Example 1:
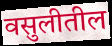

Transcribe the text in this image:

वसुलीतील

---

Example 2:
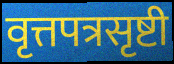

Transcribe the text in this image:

वृत्तपत्रसृष्टी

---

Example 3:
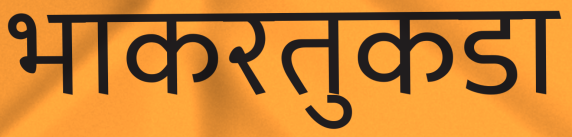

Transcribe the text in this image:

भाकरतुकडा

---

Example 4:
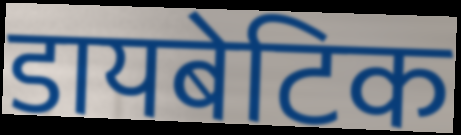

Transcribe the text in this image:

डायबेटिक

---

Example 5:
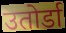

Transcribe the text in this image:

उतोर्डा